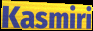
Kasmiri